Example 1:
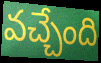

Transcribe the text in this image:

వచ్చేంది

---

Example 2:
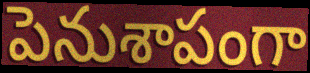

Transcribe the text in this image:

పెనుశాపంగా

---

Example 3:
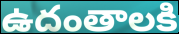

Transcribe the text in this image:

ఉదంతాలకి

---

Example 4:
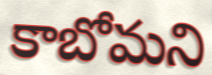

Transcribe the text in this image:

కాబోమని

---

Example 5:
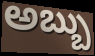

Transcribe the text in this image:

అబ్బు